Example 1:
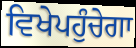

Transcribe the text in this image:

ਵਿਖੇਪਹੁੰਚੇਗਾ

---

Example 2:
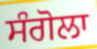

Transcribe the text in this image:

ਸੰਗੋਲਾ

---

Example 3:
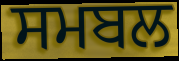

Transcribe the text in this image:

ਸਮਬਲ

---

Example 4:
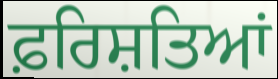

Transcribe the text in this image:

ਫ਼ਰਿਸ਼ਤਿਆਂ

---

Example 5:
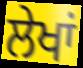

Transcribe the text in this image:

ਲੇਖਾਂ